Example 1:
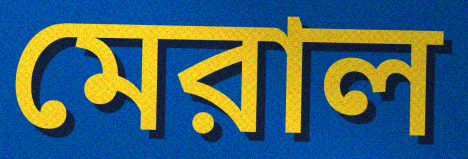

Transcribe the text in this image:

মেরাল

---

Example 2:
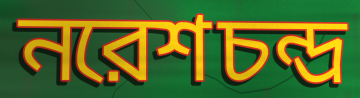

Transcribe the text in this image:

নরেশচন্দ্র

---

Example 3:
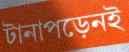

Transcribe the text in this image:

টানাপড়েনই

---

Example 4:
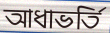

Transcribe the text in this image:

আধাভর্তি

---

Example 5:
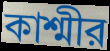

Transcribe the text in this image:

কাশ্মীর